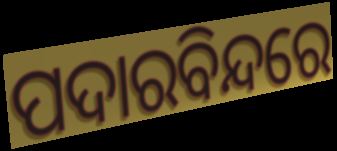
ପଦାରବିନ୍ଦରେ